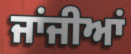
ਜਾਂਜੀਆਂ